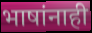
भाषांनाही